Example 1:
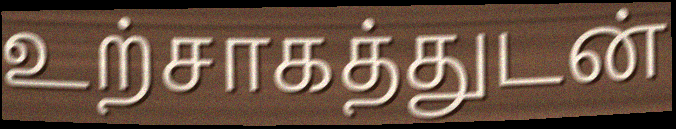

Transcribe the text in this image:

உற்சாகத்துடன்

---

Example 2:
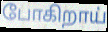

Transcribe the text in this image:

போகிறாய்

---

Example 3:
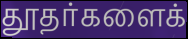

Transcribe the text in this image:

தூதர்களைக்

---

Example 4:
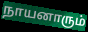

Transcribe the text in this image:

நாயனாரும்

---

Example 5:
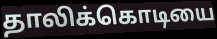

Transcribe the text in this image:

தாலிக்கொடியை